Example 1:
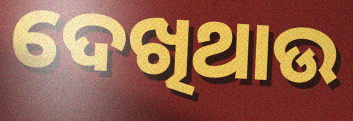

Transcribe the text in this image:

ଦେଖିଥାଉ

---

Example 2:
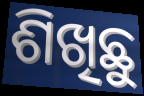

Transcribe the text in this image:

ଶିଖିଛୁ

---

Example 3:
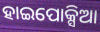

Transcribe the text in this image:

ହାଇପୋକ୍ସିଆ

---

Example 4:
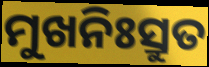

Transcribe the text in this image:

ମୁଖନିଃସ୍ରୁତ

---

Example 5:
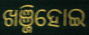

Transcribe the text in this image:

ଖଞ୍ଜିହୋଇ